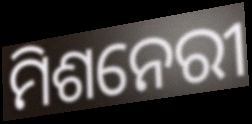
ମିଶନେରୀ